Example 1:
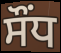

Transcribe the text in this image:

ਸੌਂਧ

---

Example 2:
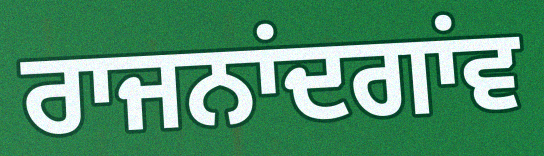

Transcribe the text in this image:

ਰਾਜਨਾਂਦਗਾਂਵ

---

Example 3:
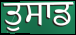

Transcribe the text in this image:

ਤੁਸਾਡ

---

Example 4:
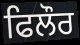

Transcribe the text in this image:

ਫਿਲੌਰ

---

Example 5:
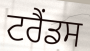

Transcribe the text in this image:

ਟਰੈਂਡਸ